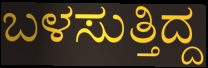
ಬಳಸುತ್ತಿದ್ದ